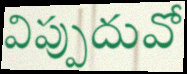
విప్పుదువో